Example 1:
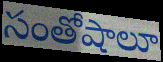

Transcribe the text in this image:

సంతోషాలూ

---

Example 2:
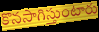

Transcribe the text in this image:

కొనసాగిస్తుంటారు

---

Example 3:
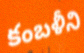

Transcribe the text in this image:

కంబళీని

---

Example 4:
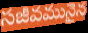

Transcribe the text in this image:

సజీవమునైన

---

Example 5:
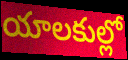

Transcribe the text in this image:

యాలకుల్లో